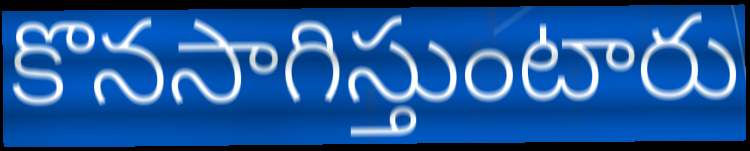
కొనసాగిస్తుంటారు